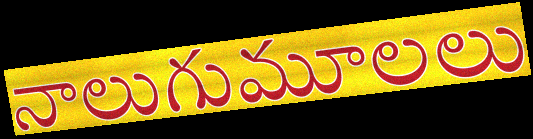
నాలుగుమూలలు